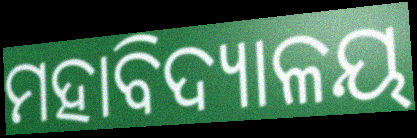
ମହାବିଦ୍ୟାଳୟ